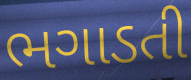
ભગાડતી